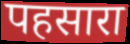
पहसारा